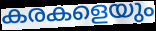
കരകളെയും